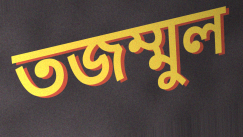
তজম্মুল